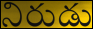
నిరుడు